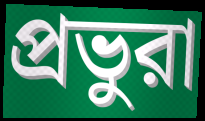
প্রভুরা